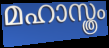
മഹാസ്ത്രം